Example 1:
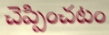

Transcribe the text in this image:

చెప్పించటం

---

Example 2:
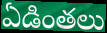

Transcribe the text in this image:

ఏడింతలు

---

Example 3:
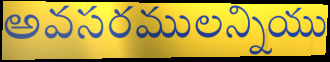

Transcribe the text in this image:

అవసరములన్నియు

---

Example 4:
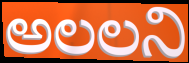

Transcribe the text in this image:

అలలని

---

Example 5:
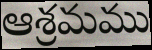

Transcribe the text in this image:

ఆశ్రమము